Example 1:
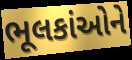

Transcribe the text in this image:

ભૂલકાંઓને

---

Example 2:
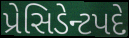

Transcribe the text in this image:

પ્રેસિડેન્ટપદે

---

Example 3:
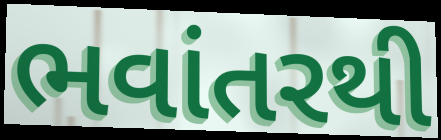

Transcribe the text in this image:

ભવાંતરથી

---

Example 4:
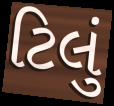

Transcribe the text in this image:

ટિલું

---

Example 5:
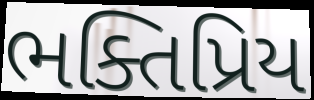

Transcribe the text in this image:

ભક્તિપ્રિય